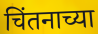
चिंतनाच्या